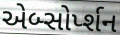
એબ્સોર્પ્શન